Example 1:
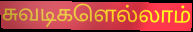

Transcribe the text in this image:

சுவடிகளெல்லாம்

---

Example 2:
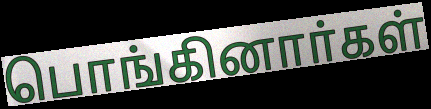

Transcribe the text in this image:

பொங்கினார்கள்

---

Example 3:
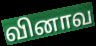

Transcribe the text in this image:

வினாவ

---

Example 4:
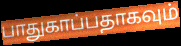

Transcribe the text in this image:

பாதுகாப்பதாகவும்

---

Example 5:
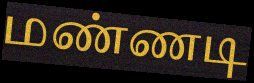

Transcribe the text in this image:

மண்ணடி